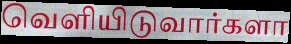
வெளியிடுவார்களா